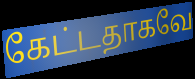
கேட்டதாகவே